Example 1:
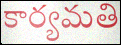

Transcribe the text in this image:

కార్యమతి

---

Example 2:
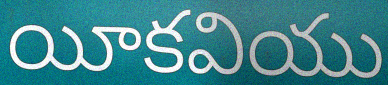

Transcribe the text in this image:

యీకవియు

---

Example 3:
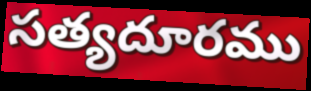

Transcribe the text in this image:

సత్యదూరము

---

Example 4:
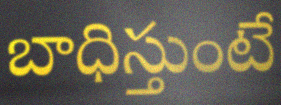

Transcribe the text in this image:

బాధిస్తుంటే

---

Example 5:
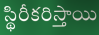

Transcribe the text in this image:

స్థిరీకరిస్తాయి